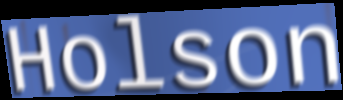
Holson